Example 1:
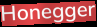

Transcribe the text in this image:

Honegger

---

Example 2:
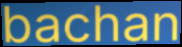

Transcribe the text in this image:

bachan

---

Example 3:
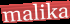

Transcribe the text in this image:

malika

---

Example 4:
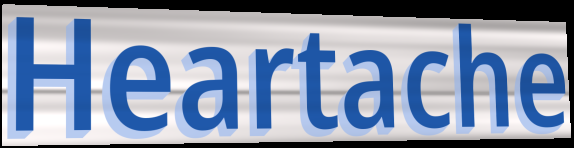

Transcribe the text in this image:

Heartache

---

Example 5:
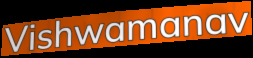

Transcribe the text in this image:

Vishwamanav